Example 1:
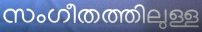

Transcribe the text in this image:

സംഗീതത്തിലുള്ള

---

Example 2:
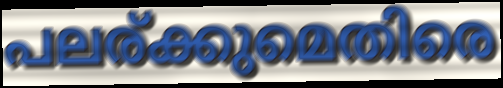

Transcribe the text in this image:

പലര്ക്കുമെതിരെ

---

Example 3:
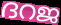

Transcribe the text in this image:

ദറജ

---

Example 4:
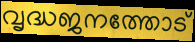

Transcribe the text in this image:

വൃദ്ധജനത്തോട്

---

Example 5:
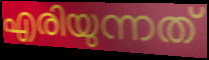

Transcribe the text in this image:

എരിയുന്നത്